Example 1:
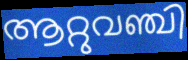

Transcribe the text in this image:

ആറ്റുവഞ്ചി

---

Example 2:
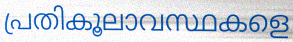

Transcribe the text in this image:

പ്രതികൂലാവസ്ഥകളെ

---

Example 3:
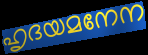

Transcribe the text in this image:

ഹൃദയമനേന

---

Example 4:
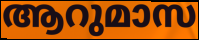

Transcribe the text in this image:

ആറുമാസ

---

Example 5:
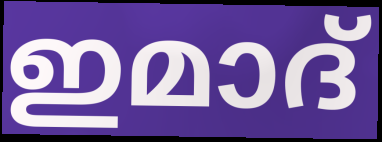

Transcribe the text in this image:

ഇമാദ്